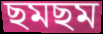
ছমছম